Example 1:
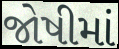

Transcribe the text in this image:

જોષીમાં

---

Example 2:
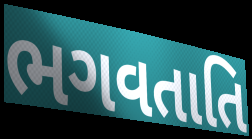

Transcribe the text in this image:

ભગવતાતિ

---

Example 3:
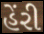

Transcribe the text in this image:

હેંરી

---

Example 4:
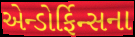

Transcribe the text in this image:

એન્ડોર્ફિન્સના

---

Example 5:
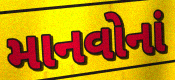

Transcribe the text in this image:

માનવોનાં